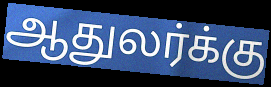
ஆதுலர்க்கு